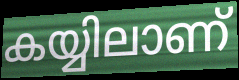
കയ്യിലാണ്